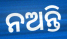
ନଅନ୍ତି